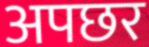
अपछर